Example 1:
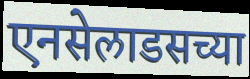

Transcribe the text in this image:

एनसेलाडसच्या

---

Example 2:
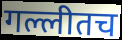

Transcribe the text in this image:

गल्लीतच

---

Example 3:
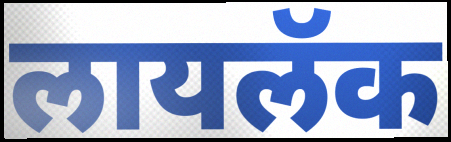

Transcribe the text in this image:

लायलॅक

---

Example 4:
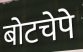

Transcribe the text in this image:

बोटचेपे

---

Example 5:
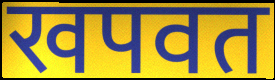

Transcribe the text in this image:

खपवत